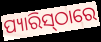
ପ୍ୟାରିସ୍‍ଠାରେ